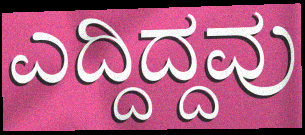
ಎದ್ದಿದ್ದವು